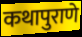
कथापुराणे